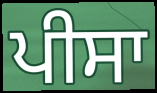
ਪੀਸਾ